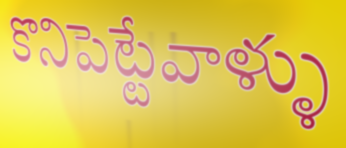
కొనిపెట్టేవాళ్ళు